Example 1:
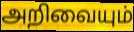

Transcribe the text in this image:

அறிவையும்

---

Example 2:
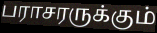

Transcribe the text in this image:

பராசரருக்கும்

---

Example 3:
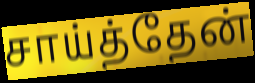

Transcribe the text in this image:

சாய்த்தேன்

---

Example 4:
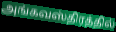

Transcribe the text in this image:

அங்கவஸ்திரத்தில்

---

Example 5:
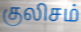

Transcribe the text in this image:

குலிசம்